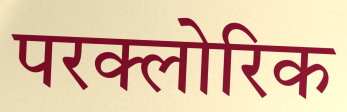
परक्लोरिक